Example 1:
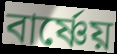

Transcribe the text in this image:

বার্ষ্ণেয়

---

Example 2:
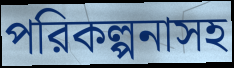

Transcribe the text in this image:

পরিকল্পনাসহ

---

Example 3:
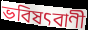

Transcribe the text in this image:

ভবিষৎবাণী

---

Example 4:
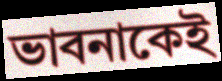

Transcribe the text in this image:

ভাবনাকেই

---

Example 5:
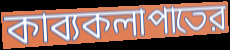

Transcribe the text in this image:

কাব্যকলাপাতের